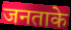
जनताके